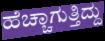
ಹೆಚ್ಚಾಗುತ್ತಿದ್ದು